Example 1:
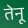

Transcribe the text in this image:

तेनू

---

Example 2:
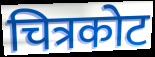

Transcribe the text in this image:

चित्रकोट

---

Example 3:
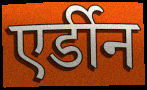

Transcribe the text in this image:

एर्डीन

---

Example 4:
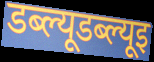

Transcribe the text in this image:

डब्ल्यूडब्ल्यूइ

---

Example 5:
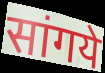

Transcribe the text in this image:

सांगये